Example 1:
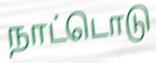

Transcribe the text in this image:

நாட்டொடு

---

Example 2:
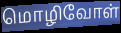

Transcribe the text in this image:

மொழிவோள்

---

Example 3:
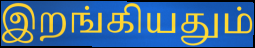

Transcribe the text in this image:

இறங்கியதும்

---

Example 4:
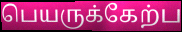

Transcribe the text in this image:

பெயருக்கேற்ப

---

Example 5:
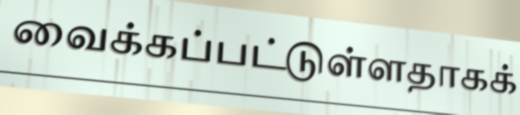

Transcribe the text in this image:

வைக்கப்பட்டுள்ளதாகக்